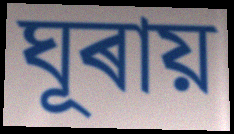
ঘূৰায়